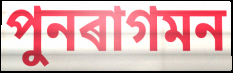
পুনৰাগমন